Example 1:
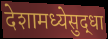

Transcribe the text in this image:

देशामध्येसुद्धा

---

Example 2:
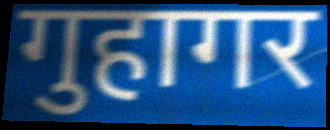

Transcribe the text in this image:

गुहागर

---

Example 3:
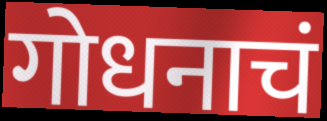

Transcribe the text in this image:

गोधनाचं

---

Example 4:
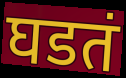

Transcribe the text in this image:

घडतं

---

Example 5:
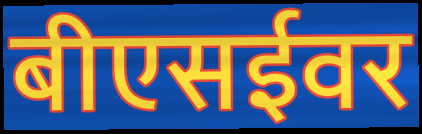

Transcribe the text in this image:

बीएसईवर